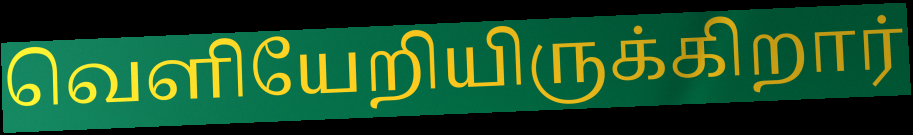
வெளியேறியிருக்கிறார்